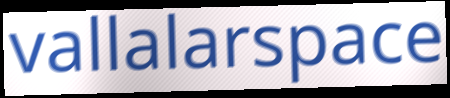
vallalarspace